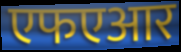
एफएआर